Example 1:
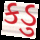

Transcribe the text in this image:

કડુ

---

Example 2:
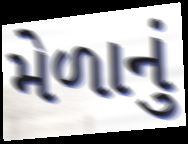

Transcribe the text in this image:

મેળાનું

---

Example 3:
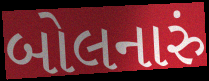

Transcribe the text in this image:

બોલનારું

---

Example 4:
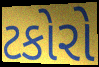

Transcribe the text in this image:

ટકોરો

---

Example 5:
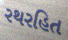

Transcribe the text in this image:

રથરહિત